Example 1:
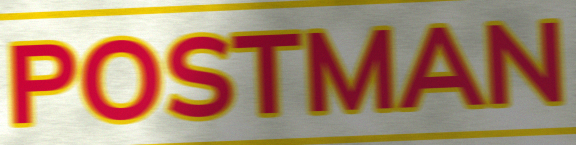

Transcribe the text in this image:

POSTMAN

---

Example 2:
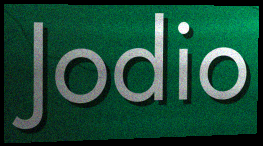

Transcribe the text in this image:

Jodio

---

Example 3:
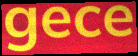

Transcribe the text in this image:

gece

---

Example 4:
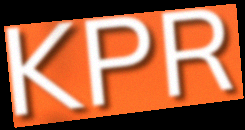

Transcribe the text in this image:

KPR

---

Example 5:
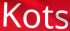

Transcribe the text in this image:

Kots